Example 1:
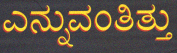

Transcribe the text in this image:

ಎನ್ನುವಂತಿತ್ತು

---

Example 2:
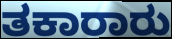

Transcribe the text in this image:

ತಕಾರಾರು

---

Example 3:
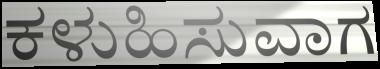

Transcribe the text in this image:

ಕಳುಹಿಸುವಾಗ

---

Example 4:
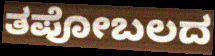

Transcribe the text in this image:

ತಪೋಬಲದ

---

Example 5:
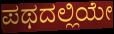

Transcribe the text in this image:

ಪಥದಲ್ಲಿಯೇ